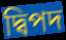
দ্বিপদ